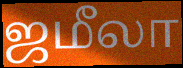
ஜமீலா